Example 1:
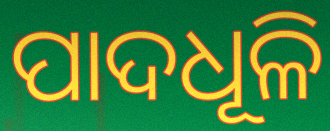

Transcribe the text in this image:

ପାଦଧୂଳି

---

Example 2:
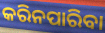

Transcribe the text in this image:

କରିନପାରିବା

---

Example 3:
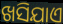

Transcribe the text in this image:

ଖସିଯାଏ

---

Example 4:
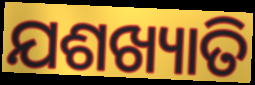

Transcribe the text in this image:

ଯଶଖ୍ୟାତି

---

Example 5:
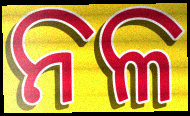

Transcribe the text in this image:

ନଳ